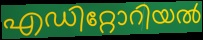
എഡിറ്റോറിയൽ